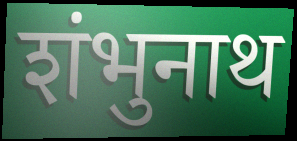
शंभुनाथ